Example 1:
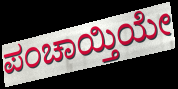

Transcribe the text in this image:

ಪಂಚಾಯ್ತಿಯೇ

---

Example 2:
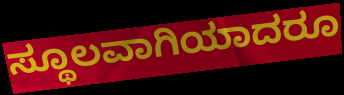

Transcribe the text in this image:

ಸ್ಥೂಲವಾಗಿಯಾದರೂ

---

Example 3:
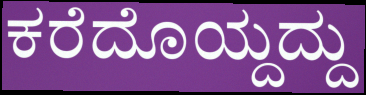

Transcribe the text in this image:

ಕರೆದೊಯ್ದದ್ದು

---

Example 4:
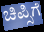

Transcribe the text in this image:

ಚಿಪ್ಸಿಗೆ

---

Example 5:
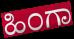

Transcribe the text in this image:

ಹಿಂಗಾ